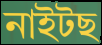
নাইটছ